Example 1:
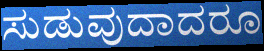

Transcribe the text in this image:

ಸುಡುವುದಾದರೂ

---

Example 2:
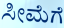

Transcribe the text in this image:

ಸೀಮೆಗೆ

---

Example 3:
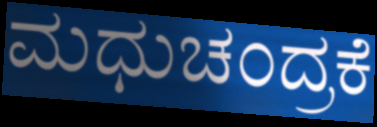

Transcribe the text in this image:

ಮಧುಚಂದ್ರಕೆ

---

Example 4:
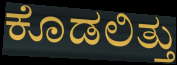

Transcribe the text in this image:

ಕೊಡಲಿತ್ತು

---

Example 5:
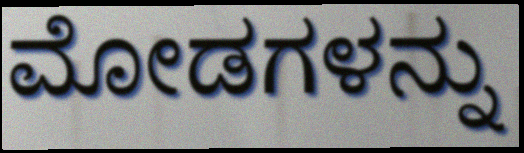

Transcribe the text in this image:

ಮೋಡಗಳನ್ನು